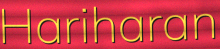
Hariharan